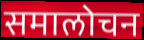
समालोचन